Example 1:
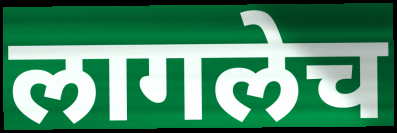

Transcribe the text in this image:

लागलेच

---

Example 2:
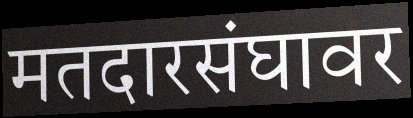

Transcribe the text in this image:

मतदारसंघावर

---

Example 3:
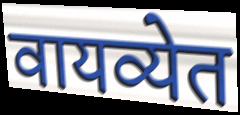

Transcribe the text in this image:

वायव्येत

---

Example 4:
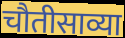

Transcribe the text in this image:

चौतीसाव्या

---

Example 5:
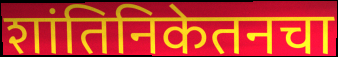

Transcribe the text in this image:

शांतिनिकेतनचा